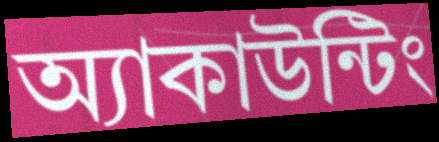
অ্যাকাউন্টিং